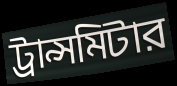
ট্রান্সমিটার